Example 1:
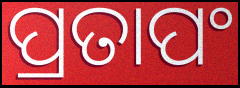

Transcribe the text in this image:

ପ୍ରତାପଂ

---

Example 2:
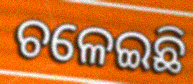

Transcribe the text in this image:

ଚଳେଇଛି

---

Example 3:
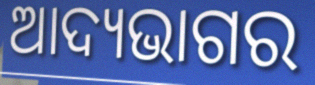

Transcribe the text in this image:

ଆଦ୍ୟଭାଗର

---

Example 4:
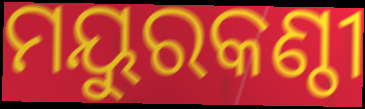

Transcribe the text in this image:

ମୟୁରକଣ୍ଠୀ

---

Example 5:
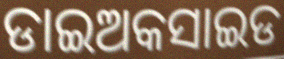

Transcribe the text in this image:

ଡାଇଅକସାଇଡ